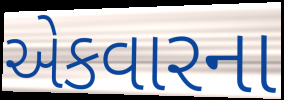
એકવારના